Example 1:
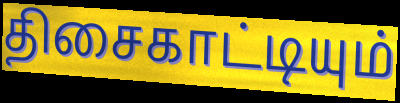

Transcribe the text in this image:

திசைகாட்டியும்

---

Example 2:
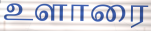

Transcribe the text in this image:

உளாரை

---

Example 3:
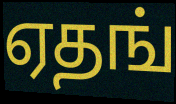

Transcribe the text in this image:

ஏதங்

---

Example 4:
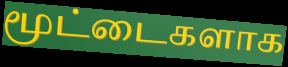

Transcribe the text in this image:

மூட்டைகளாக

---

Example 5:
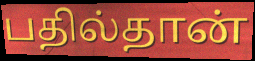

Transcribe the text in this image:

பதில்தான்